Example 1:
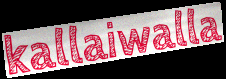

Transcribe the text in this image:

kallaiwalla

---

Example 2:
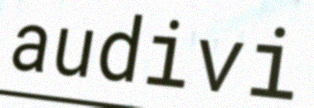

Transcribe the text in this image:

audivi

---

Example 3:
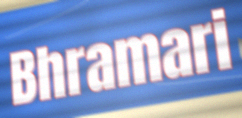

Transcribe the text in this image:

Bhramari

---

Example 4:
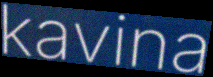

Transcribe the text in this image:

kavina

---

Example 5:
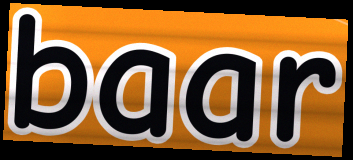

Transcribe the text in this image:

baar